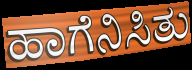
ಹಾಗೆನಿಸಿತು